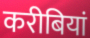
करीबियां